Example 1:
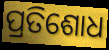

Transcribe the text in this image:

ପ୍ରତିଶୋଧ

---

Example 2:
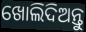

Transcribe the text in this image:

ଖୋଲିଦିଅନ୍ତୁ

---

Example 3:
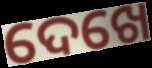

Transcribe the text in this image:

ଦେଖେ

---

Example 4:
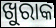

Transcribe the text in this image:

ଖୁରାକ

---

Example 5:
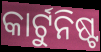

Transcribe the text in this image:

କାର୍ଟୁନିଷ୍ଟ